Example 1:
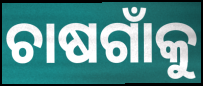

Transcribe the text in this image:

ଚାଷଗାଁକୁ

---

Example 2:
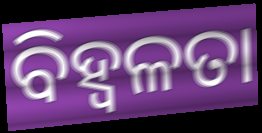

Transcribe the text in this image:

ବିହ୍ଵଳତା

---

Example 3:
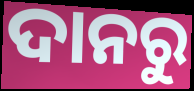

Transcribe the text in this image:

ଦାନରୁ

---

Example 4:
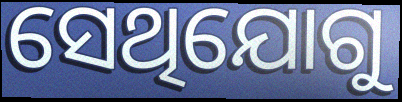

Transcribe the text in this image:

ସେଥିଯୋଗୁ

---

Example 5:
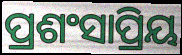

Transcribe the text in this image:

ପ୍ରଶଂସାପ୍ରିୟ